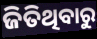
ଜିତିଥିବାରୁ